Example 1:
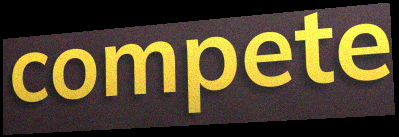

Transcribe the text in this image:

compete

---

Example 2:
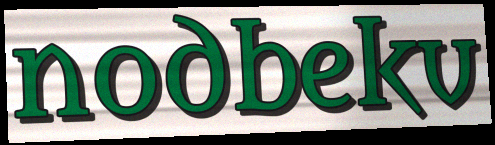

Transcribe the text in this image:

nodbeku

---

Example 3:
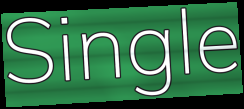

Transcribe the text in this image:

Single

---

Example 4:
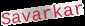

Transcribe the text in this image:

Savarkar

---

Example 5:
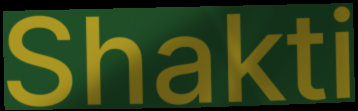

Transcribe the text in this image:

Shakti